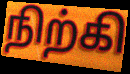
நிற்கி